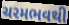
ચરમભવથી